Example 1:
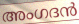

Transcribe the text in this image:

അംഗദൻ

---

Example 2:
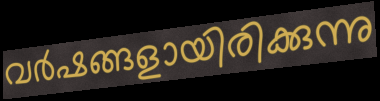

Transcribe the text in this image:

വർഷങ്ങളായിരിക്കുന്നു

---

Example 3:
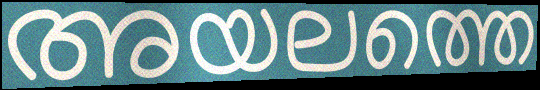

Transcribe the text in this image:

അയലത്തെ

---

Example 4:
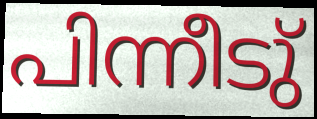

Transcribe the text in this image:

പിന്നീടു്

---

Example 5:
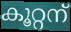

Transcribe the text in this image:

കൂറ്റന്